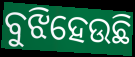
ବୁଝିହେଉଛି